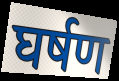
घर्षण